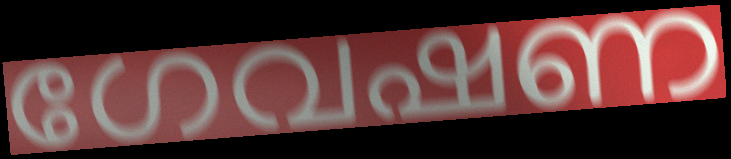
ഗേവഷണ